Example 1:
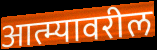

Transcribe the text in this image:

आत्म्यावरील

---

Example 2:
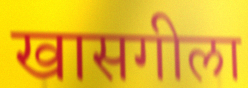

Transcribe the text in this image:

खासगीला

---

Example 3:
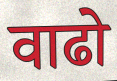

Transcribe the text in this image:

वाढो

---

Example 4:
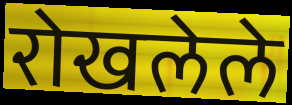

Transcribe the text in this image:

रोखलेले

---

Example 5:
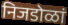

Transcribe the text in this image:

निजडोळां